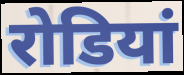
रोडियां